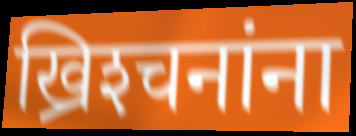
ख्रिश्‍चनांना